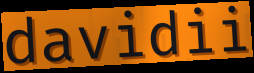
davidii